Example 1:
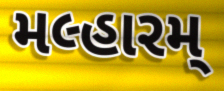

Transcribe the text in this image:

મલ્હારમ્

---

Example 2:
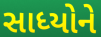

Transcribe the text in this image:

સાધ્યોને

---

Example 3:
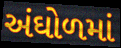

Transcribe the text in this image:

અંઘોળમાં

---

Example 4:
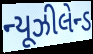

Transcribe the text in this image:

ન્યૂઝીલેન્ડ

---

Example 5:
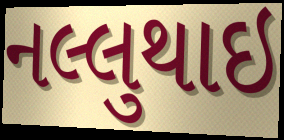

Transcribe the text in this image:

નલ્લુથાઇ